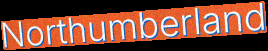
Northumberland